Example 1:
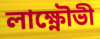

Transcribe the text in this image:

লাক্ষ্ণৌভী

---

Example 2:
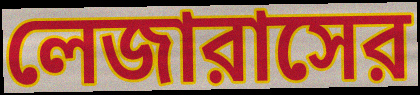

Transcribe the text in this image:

লেজারাসের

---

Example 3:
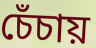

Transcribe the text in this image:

চেঁচায়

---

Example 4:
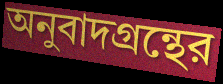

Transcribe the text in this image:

অনুবাদগ্রন্থের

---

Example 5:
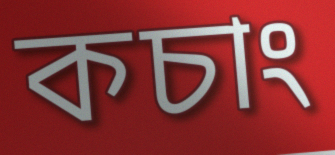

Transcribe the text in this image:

কচাং